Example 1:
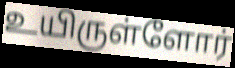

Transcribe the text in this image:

உயிருள்ளோர்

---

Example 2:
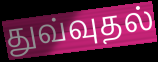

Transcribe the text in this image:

துவ்வுதல்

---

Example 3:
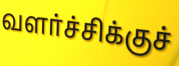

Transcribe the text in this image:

வளர்ச்சிக்குச்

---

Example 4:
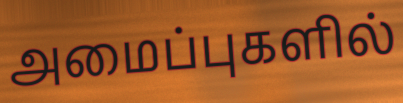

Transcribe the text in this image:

அமைப்புகளில்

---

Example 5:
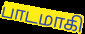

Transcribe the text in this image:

பாடமாகி